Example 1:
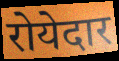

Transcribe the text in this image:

रोयेदार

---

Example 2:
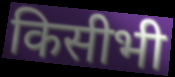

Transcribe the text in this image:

किसीभी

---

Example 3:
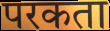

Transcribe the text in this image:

परकता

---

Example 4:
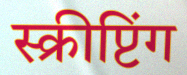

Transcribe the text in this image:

स्क्रीप्टिंग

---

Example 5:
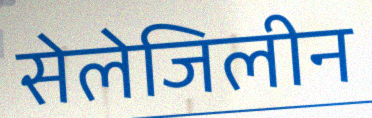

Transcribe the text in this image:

सेलेजिलीन